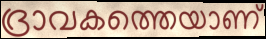
ദ്രാവകത്തെയാണ്